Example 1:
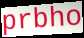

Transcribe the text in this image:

prbho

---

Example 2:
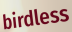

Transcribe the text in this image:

birdless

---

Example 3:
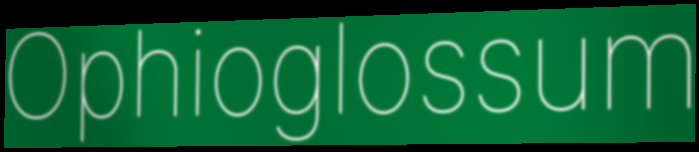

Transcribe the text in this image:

Ophioglossum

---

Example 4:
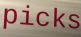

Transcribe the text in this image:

picks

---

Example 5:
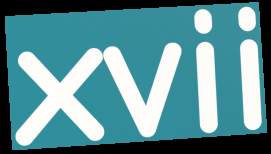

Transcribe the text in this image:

xvii